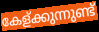
കേള്ക്കുന്നുണ്ട്